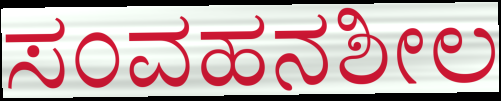
ಸಂವಹನಶೀಲ